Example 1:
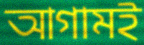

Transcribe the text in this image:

আগামই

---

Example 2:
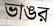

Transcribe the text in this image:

ভাঙর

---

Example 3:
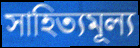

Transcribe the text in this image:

সাহিত্যমূল্য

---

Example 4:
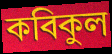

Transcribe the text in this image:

কবিকুল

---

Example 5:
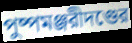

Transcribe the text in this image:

পুষ্পমঞ্জরীদণ্ডের